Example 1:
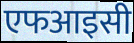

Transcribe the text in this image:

एफआइसी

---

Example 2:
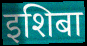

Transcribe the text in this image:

इशिबा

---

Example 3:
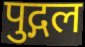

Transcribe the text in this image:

पुद्गल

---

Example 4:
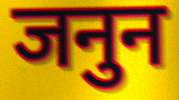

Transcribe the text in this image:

जनुन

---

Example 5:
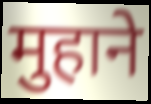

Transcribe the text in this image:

मुहाने